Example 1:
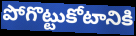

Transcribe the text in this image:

పోగొట్టుకోటానికి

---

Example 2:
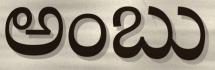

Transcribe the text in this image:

అంబు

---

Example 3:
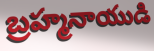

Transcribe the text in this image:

బ్రహ్మనాయుడి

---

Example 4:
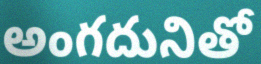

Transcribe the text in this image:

అంగదునితో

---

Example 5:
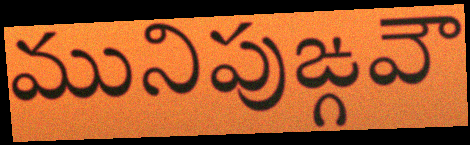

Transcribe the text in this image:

మునిపుఙ్గవౌ